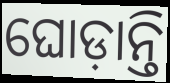
ଘୋଡ଼ାନ୍ତି